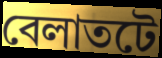
বেলাতটে